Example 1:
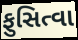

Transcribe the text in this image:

ફુસિત્વા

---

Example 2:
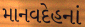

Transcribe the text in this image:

માનવદેહનાં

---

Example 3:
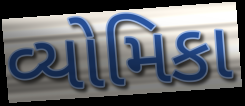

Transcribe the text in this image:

વ્યોમિકા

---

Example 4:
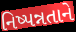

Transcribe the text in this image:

નિષ્પન્નતાને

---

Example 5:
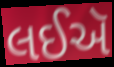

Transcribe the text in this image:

લઈઍ